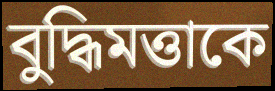
বুদ্ধিমত্তাকে